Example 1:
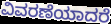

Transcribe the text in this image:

ವಿವರಣೆಯಾದರೆ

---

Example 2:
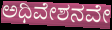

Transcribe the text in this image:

ಅಧಿವೇಶನವೇ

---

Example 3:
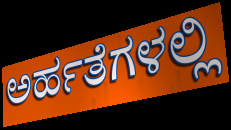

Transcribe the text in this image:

ಅರ್ಹತೆಗಳಲ್ಲಿ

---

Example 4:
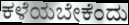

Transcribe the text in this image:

ಕಳೆಯಬೇಕೆಂದು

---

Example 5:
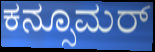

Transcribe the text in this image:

ಕನ್ಸೂಮರ್